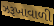
ઝરૂખાવાળી